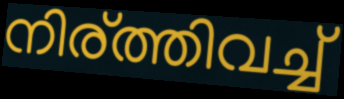
നിര്ത്തിവച്ച്